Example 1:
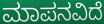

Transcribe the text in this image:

ಮಾಪನವಿದೆ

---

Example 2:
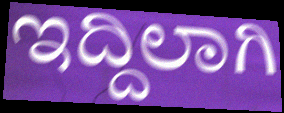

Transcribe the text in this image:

ಇದ್ದಿಲಾಗಿ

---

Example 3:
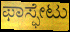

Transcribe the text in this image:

ಫಾಸ್ಫೇಟು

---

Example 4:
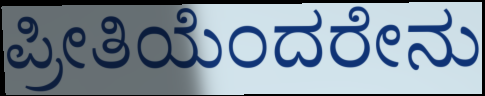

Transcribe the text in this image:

ಪ್ರೀತಿಯೆಂದರೇನು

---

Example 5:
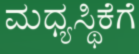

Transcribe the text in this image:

ಮಧ್ಯಸ್ಥಿಕೆಗೆ